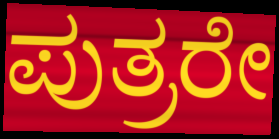
ಪುತ್ರರೇ